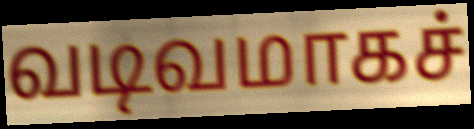
வடிவமாகச்